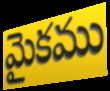
మైకము